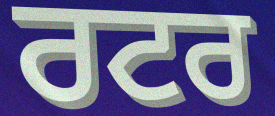
ਰਟਰ